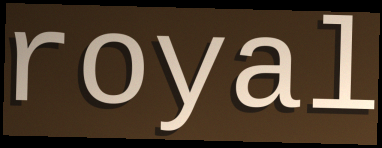
royal